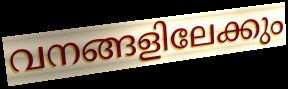
വനങ്ങളിലേക്കും